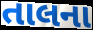
તાલના